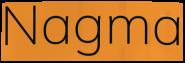
Nagma